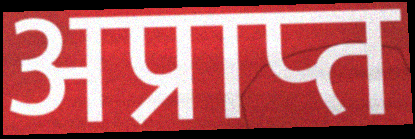
अप्राप्त